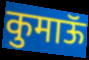
कुमाऊॅ